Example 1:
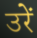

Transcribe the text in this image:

उरें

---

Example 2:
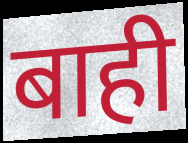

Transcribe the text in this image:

बाही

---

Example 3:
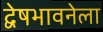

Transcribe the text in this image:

द्वेषभावनेला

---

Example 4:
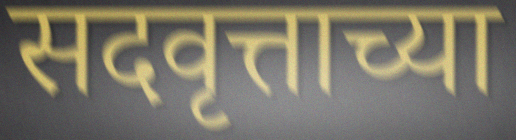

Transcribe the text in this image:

सदवृत्ताच्या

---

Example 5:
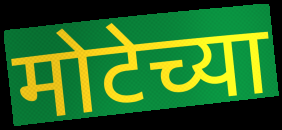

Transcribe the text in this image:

मोटेच्या